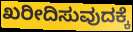
ಖರೀದಿಸುವುದಕ್ಕೆ